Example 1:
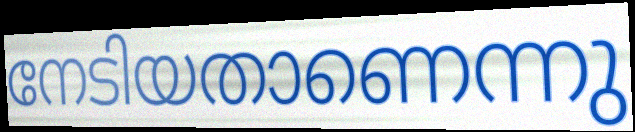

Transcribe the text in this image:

നേടിയതാണെന്നു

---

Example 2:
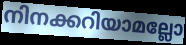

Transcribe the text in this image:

നിനക്കറിയാമല്ലോ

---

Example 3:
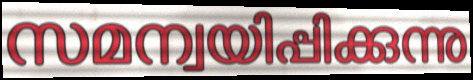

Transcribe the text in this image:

സമന്വയിപ്പിക്കുന്നു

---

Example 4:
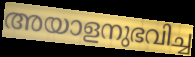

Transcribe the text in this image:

അയാളനുഭവിച്ച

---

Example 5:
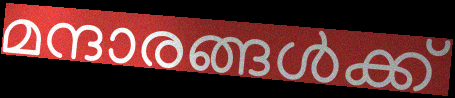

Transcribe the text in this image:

മന്ദാരങ്ങൾക്ക്